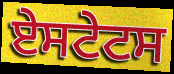
ਏਸਟੇਟਸ